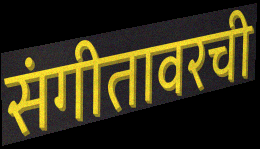
संगीतावरची